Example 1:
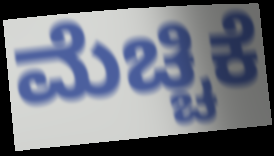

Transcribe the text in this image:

ಮೆಚ್ಚಿಕೆ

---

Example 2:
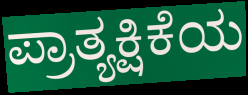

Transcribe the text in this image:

ಪ್ರಾತ್ಯಕ್ಷಿಕೆಯ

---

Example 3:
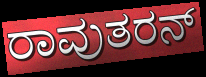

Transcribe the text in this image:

ರಾವುತರನ್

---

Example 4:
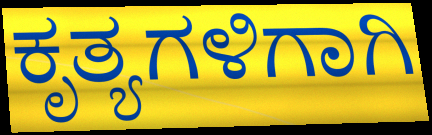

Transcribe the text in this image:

ಕೃತ್ಯಗಳಿಗಾಗಿ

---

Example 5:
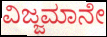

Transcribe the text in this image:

ವಿಜ್ಜಮಾನೇ